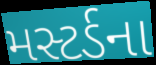
મસ્ટર્ડના